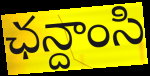
ఛన్దాంసి